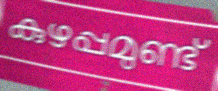
കുഴപ്പമുണ്ട്